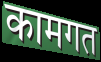
कामगत